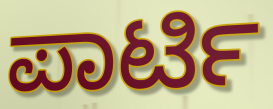
ಪಾರ್ಟಿ